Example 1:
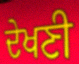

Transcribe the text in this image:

ਦੇਖਣੀ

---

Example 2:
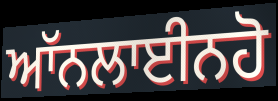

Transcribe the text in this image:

ਆੱਨਲਾਈਨਹੋ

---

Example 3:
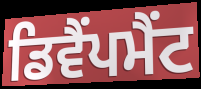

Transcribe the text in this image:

ਡਿਵੈਂਪਮੈਂਟ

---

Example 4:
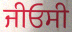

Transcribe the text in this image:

ਜੀਓਸੀ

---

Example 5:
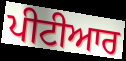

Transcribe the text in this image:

ਪੀਟੀਆਰ